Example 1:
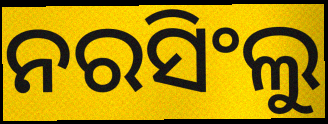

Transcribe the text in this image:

ନରସିଂଲୁ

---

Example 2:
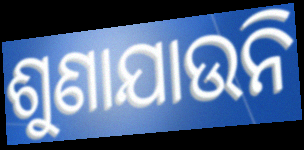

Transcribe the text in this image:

ଶୁଣାଯାଉନି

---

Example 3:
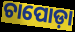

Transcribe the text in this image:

ଚାପୋଡ଼ା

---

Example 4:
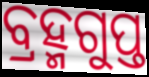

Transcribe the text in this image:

ବ୍ରହ୍ମଗୁପ୍ତ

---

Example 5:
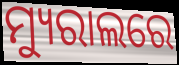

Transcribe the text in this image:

ମ୍ୟୁରାଲରେ